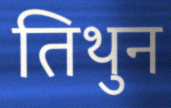
तिथुन